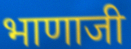
भाणाजी